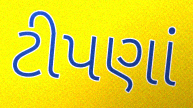
ટીપણાં